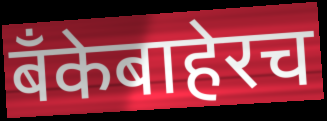
बँकेबाहेरच